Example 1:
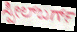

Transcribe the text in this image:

ಸ್ಪೀಲ್‌ಬರ್ಗ್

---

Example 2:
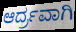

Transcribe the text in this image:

ಆರ್ದ್ರವಾಗಿ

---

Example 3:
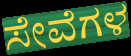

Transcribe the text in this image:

ಸೇವೆಗಳ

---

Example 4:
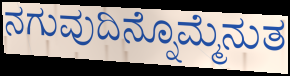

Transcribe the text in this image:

ನಗುವುದಿನ್ನೊಮ್ಮೆನುತ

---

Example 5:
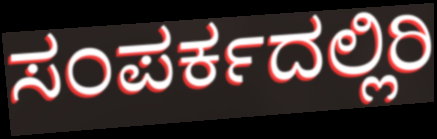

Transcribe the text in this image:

ಸಂಪರ್ಕದಲ್ಲಿರಿ